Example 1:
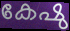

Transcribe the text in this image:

കേഷു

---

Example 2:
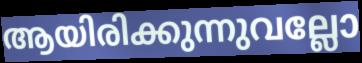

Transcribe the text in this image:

ആയിരിക്കുന്നുവല്ലോ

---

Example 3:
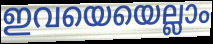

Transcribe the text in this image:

ഇവയെയെല്ലാം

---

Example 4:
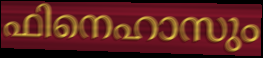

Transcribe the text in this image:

ഫിനെഹാസും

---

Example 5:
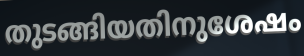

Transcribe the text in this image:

തുടങ്ങിയതിനുശേഷം